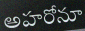
అహరోనూ